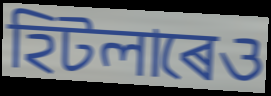
হিটলাৰেও